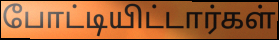
போட்டியிட்டார்கள்